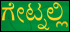
ಗೇಟ್ನಲ್ಲಿ